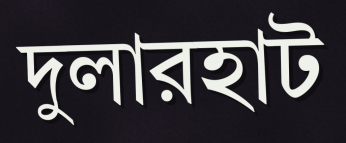
দুলারহাট